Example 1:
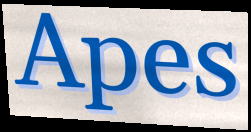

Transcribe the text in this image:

Apes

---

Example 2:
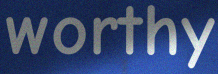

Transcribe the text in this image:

worthy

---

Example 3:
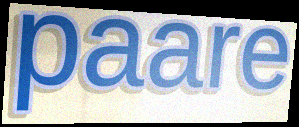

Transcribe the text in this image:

paare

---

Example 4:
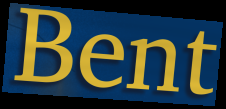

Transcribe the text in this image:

Bent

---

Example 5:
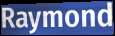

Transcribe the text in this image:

Raymond